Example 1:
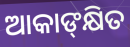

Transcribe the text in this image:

ଆକାଙ୍‍କ୍ଷିତ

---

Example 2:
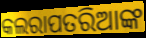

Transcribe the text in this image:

କଲରାପତରିଆଙ୍କ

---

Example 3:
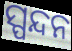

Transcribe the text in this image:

ସ୍ପନ୍ଦନ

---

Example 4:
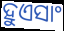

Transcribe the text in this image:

ହୁଏସାଂ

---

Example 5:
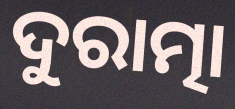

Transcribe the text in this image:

ଦୁରାତ୍ମା